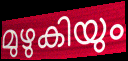
മുഴുകിയും